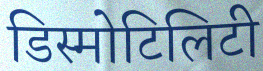
डिस्मोटिलिटी